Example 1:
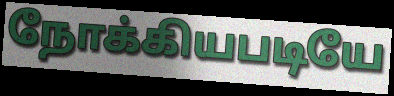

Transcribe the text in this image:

நோக்கியபடியே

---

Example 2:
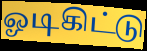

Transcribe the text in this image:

ஓடிகிட்டு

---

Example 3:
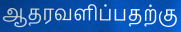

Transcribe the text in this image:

ஆதரவளிப்பதற்கு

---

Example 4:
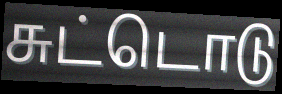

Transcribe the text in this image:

சுட்டொடு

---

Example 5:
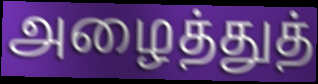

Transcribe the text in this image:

அழைத்துத்